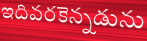
ఇదివరకెన్నడును